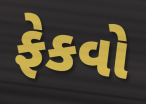
ફેકવો